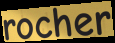
rocher